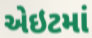
એઇટમાં